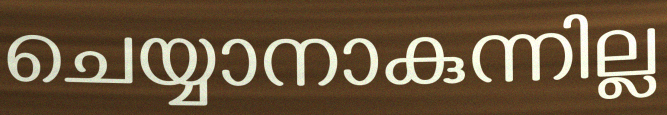
ചെയ്യാനാകുന്നില്ല